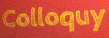
Colloquy